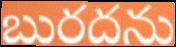
బురదను